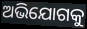
ଅଭିଯୋଗକୁ